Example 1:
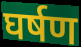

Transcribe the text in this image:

घर्षण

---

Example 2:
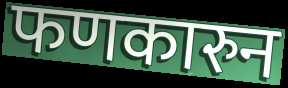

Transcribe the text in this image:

फणकारुन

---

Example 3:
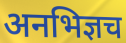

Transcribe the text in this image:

अनभिज्ञच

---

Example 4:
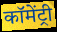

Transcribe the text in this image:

कॉमेंट्री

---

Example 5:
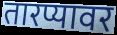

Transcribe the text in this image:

तारप्यावर